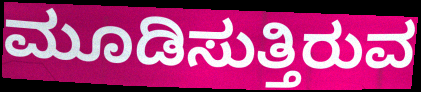
ಮೂಡಿಸುತ್ತಿರುವ